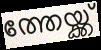
ത്തേയ്ക്ക്